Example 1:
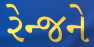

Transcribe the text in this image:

રેન્જને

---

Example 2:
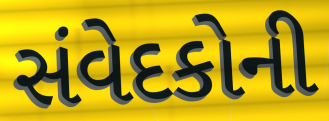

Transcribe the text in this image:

સંવેદકોની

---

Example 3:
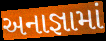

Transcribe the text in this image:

અનાજ્ઞામાં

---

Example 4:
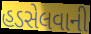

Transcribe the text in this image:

હડસેલવાની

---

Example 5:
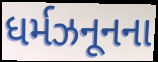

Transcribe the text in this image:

ધર્મઝનૂનના